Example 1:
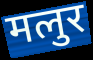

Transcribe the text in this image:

मलुर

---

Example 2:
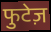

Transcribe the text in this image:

फुटेज़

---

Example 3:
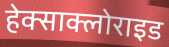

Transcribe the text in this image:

हेक्साक्लोराइड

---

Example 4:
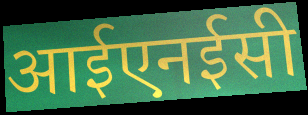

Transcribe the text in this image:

आईएनईसी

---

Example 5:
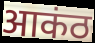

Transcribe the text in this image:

आकंठ